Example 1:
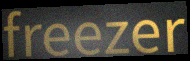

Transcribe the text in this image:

freezer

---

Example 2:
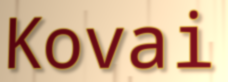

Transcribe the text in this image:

Kovai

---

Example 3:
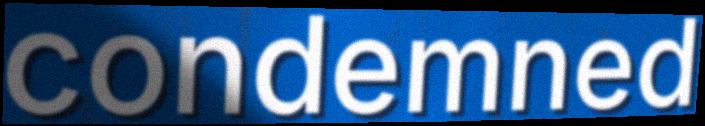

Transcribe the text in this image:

condemned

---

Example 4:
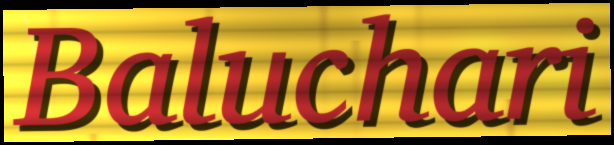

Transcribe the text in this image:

Baluchari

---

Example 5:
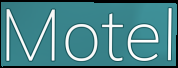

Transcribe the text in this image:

Motel